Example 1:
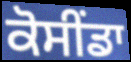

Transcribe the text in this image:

ਕੋਸੀਂਡਾ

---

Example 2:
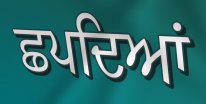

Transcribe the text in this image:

ਛਪਦਿਆਂ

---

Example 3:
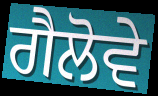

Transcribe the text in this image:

ਗੈਲੋਵੇ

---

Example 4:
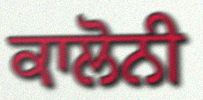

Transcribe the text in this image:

ਕਾਲੋਨੀ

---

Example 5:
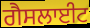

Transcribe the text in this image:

ਗੈਸਲਾਈਟ